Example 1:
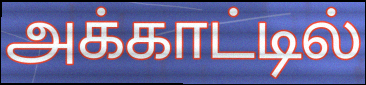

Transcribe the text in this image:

அக்காட்டில்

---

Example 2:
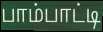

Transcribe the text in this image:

பாம்பாட்டி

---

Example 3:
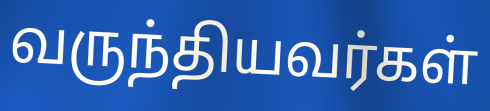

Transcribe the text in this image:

வருந்தியவர்கள்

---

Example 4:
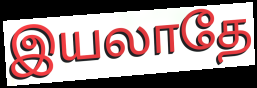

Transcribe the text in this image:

இயலாதே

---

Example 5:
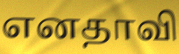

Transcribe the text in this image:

எனதாவி